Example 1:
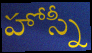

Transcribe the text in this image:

హోస్నీ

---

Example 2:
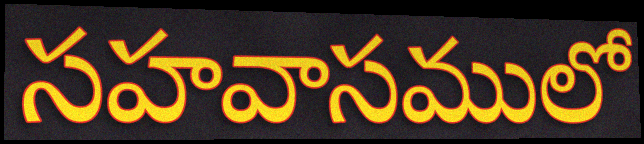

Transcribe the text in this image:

సహవాసములో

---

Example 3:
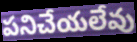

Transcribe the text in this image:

పనిచేయలేవు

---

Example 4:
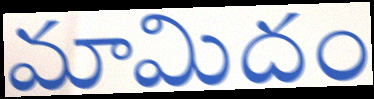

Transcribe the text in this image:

మామిదం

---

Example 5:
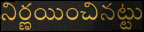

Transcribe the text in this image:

నిర్ణయించినట్టు